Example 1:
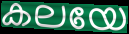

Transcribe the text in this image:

കലയേ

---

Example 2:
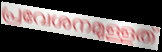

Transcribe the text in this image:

പ്രവേശനമുള്ളത്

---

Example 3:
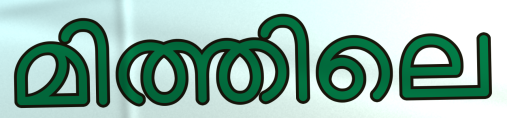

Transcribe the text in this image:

മിത്തിലെ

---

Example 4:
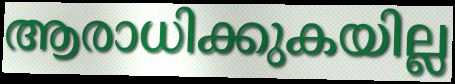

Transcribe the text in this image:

ആരാധിക്കുകയില്ല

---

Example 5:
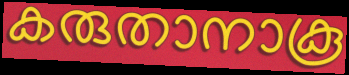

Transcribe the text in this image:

കരുതാനാകൂ